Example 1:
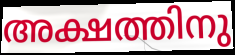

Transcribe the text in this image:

അക്ഷത്തിനു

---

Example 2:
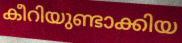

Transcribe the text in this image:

കീറിയുണ്ടാക്കിയ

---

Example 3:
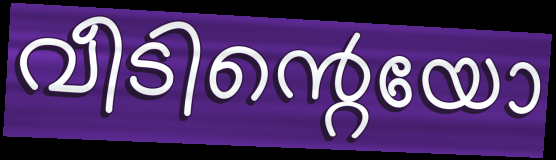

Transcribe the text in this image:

വീടിന്റെയോ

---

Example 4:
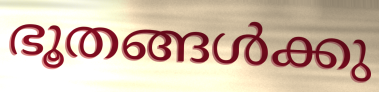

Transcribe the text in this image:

ഭൂതങ്ങൾക്കു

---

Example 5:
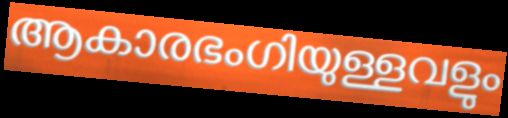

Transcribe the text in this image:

ആകാരഭംഗിയുള്ളവളും